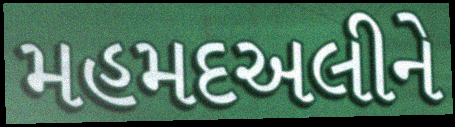
મહમદઅલીને